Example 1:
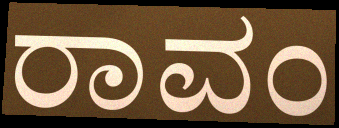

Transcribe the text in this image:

ರಾವಂ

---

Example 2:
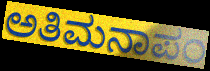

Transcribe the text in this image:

ಅತಿಮನಾಪಂ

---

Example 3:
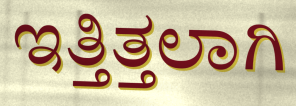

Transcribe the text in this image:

ಇತ್ತಿತ್ತಲಾಗಿ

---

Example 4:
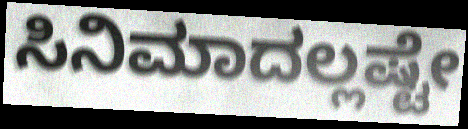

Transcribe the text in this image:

ಸಿನಿಮಾದಲ್ಲಷ್ಟೇ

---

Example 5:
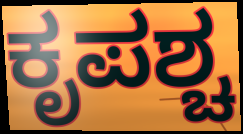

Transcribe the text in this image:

ಕೃಪಶ್ಚ